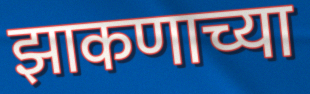
झाकणाच्या